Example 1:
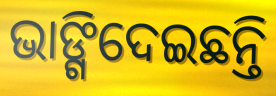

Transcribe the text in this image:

ଭାଙ୍ଗିଦେଇଛନ୍ତି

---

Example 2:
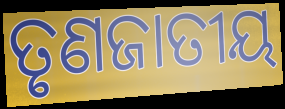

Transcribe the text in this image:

ତୃଣଜାତୀୟ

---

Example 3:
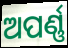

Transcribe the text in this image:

ଅପର୍ଣ୍ଣ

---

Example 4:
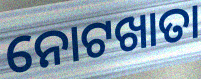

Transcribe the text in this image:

ନୋଟଖାତା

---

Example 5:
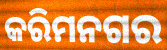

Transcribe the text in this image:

କରିମନଗର